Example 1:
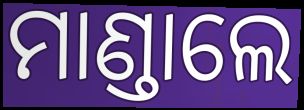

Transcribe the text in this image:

ମାଣ୍ଡାଲେ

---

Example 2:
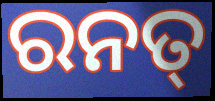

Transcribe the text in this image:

ରନତ୍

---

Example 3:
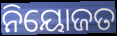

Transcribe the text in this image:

ନିୟୋଜତ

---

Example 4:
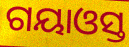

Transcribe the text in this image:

ଗୟାଓସ୍ତ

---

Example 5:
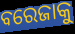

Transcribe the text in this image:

ବରେଜାକୁ